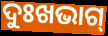
ଦୁଃଖଭାଗ୍